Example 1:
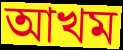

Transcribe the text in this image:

আখম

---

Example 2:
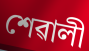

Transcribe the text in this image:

শেৱালী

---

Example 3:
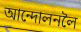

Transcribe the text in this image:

আন্দোলনলৈ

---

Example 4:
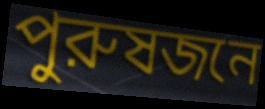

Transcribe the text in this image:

পুৰুষজনে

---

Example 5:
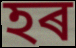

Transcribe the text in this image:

হৰ